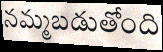
నమ్మబడుతోంది